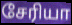
சேரியா